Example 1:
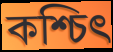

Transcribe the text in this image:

কশ্চিৎ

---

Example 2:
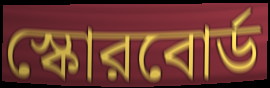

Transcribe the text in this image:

স্কোরবোর্ড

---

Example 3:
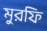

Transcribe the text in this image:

মুরফি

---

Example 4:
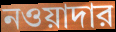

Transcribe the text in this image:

নওয়াদার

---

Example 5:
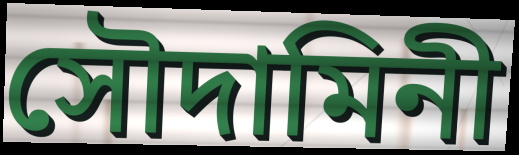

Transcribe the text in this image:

সৌদামিনী